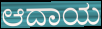
ಆದಾಯ